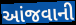
આંજવાની